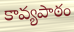
కావ్యపాఠం